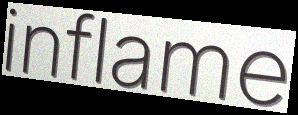
inflame